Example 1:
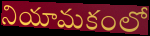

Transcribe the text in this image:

నియామకంలో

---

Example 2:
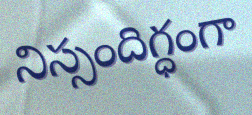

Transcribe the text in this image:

నిస్సందిగ్ధంగా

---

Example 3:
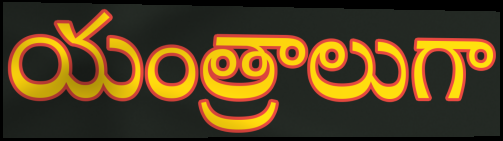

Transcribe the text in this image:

యంత్రాలుగా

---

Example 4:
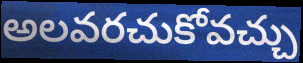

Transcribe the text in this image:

అలవరచుకోవచ్చు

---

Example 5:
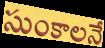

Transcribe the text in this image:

సుంకాలనే